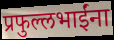
प्रफुल्लभाईंना